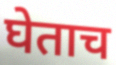
घेताच